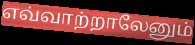
எவ்வாற்றாலேனும்